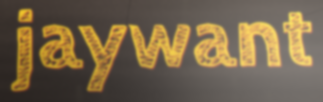
jaywant